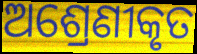
ଅଶ୍ରେଣୀକୃତ